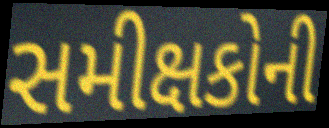
સમીક્ષકોની